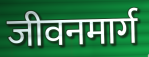
जीवनमार्ग